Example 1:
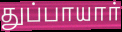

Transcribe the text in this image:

துப்பாயார்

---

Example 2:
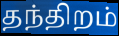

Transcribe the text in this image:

தந்திறம்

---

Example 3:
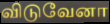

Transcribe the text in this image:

விடுவேனா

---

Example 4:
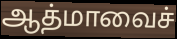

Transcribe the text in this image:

ஆத்மாவைச்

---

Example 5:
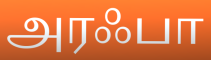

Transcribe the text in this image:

அரஃபா